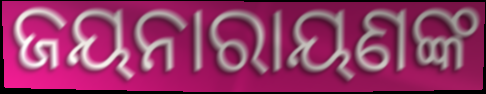
ଜୟନାରାୟଣଙ୍କ